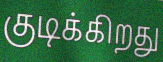
குடிக்கிறது